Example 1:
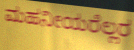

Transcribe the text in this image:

ಮಹನೀಯರೆಲ್ಲರ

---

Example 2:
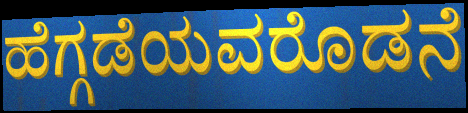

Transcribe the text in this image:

ಹೆಗ್ಗಡೆಯವರೊಡನೆ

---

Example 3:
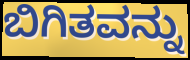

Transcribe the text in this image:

ಬಿಗಿತವನ್ನು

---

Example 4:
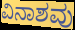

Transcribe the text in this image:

ವಿನಾಶವು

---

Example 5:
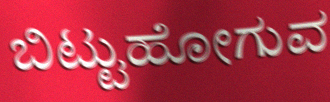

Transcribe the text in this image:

ಬಿಟ್ಟುಹೋಗುವ